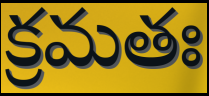
క్రమతః